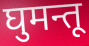
घुमन्तू